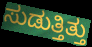
ಸುಡುತ್ತಿತ್ತು